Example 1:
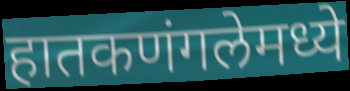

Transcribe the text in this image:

हातकणंगलेमध्ये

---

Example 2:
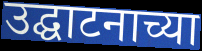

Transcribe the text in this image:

उद्घाटनाच्या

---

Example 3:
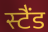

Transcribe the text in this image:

स्टैंड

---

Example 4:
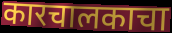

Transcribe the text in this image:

कारचालकाचा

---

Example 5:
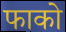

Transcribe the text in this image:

फाको